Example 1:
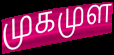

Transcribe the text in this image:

முகமுள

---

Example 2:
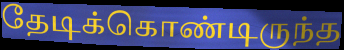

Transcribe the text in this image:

தேடிக்கொண்டிருந்த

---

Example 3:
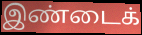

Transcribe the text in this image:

இண்டைக்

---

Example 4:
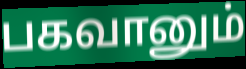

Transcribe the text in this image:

பகவானும்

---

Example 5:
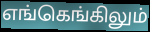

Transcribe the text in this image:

எங்கெங்கிலும்